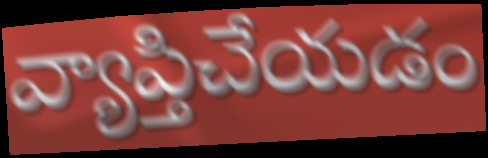
వ్యాప్తిచేయడం